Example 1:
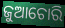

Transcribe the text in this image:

ଜୁଆଚୋରି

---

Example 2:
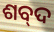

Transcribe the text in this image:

ଶବ୍‍ଦ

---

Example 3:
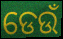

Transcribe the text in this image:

ଡେଉଁ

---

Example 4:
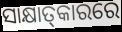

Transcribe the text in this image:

ସାକ୍ଷାତ୍‌କାରରେ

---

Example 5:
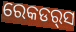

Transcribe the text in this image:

ରେକଡର୍‌ସ